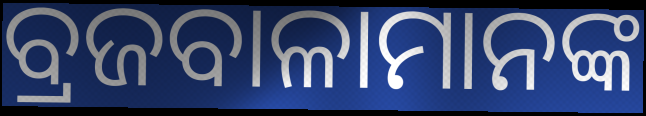
ବ୍ରଜବାଳାମାନଙ୍କ